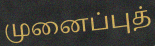
முனைப்புத்